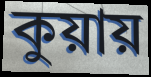
কুয়ায়